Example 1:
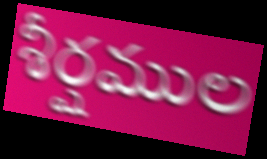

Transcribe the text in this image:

శీర్షముల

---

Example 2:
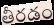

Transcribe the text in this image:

తీరడం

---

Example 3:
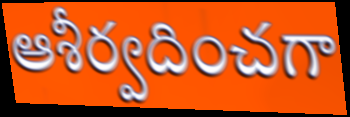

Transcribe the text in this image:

ఆశీర్వదించగా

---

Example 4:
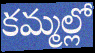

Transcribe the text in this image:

కమ్మల్లో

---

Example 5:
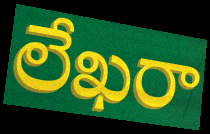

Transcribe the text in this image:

లేఖరా